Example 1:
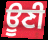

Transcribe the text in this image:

ਊਣੀ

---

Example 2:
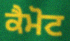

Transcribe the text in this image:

ਕੈਮੋਟ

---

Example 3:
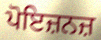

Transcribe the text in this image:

ਪੋਇਜ਼ਨਜ਼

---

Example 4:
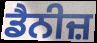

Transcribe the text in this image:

ਡੈਨੀਜ਼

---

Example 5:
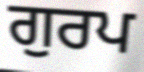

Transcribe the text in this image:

ਗੁਰਪ